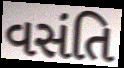
વસંતિ